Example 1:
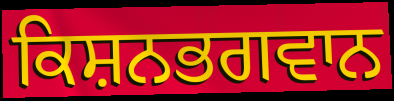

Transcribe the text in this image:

ਕਿਸ਼ਨਭਗਵਾਨ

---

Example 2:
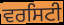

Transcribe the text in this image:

ਵਰਸਿਟੀ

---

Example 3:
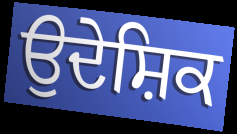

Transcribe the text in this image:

ਉਦੇਸ਼ਿਕ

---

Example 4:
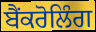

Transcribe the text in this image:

ਬੈਂਕਰੋਲਿੰਗ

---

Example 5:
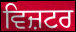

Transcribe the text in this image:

ਵਿਜ਼ਟਰ